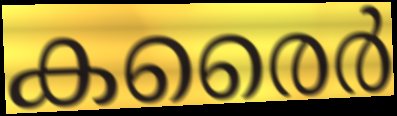
കരൈർ